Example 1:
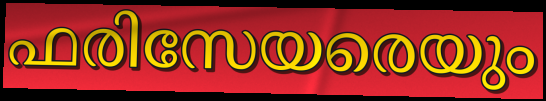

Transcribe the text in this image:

ഫരിസേയരെയും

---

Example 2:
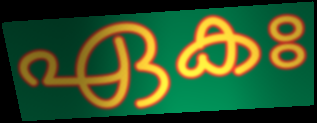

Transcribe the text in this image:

ഏകഃ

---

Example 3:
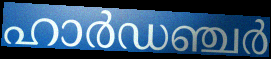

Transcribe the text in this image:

ഹാർഡഞ്ചർ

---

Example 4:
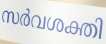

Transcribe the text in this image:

സർവശക്തി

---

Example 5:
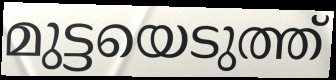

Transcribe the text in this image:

മുട്ടയെടുത്ത്